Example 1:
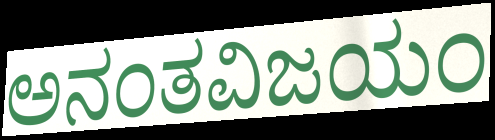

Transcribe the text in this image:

ಅನಂತವಿಜಯಂ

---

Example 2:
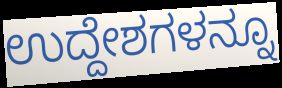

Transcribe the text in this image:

ಉದ್ದೇಶಗಳನ್ನೂ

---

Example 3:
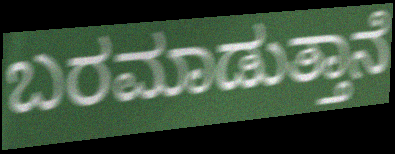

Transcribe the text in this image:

ಬರಮಾಡುತ್ತಾನೆ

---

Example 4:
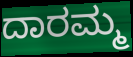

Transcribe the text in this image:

ದಾರಮ್ಮ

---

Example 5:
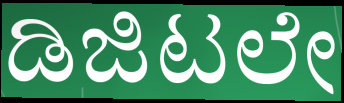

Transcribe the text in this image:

ಡಿಜಿಟಲೇ